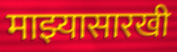
माझ्यासारखी